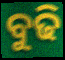
ବୁଢି